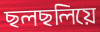
ছলছলিয়ে